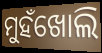
ମୁହଁଖୋଲି